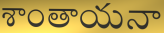
శాంతాయనా